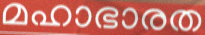
മഹാഭാരത